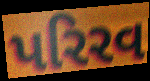
પરિરવ